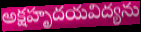
అక్షహృదయవిద్యను